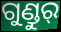
ଗୁଣ୍ଡୁର୍